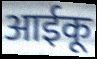
आईकू